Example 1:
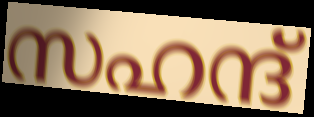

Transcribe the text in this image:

സഹന്ദ്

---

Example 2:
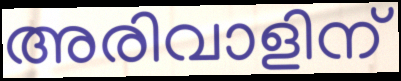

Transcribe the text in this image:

അരിവാളിന്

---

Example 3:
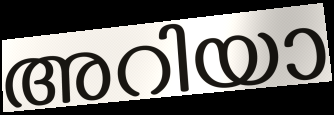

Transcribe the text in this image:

അറിയാ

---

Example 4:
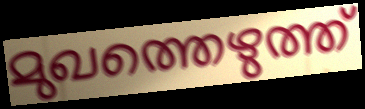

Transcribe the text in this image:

മുഖത്തെഴുത്ത്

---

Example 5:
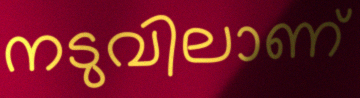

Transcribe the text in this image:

നടുവിലാണ്